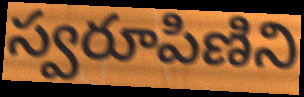
స్వరూపిణిని